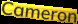
Cameron